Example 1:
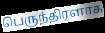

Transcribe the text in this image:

பெருந்திரளாக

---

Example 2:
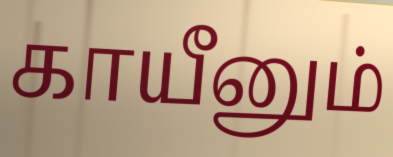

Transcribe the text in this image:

காயீனும்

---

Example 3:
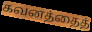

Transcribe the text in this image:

கவனத்தைத்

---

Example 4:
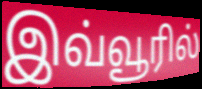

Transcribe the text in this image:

இவ்வூரில்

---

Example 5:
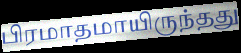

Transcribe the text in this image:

பிரமாதமாயிருந்தது